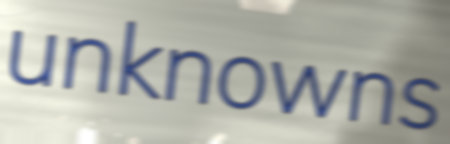
unknowns